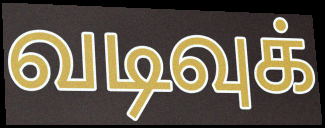
வடிவுக்